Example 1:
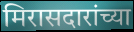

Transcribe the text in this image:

मिरासदारांच्या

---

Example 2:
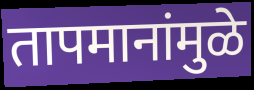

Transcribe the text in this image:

तापमानांमुळे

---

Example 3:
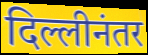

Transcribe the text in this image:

दिल्लीनंतर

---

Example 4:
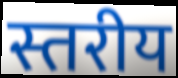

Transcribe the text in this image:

स्तरीय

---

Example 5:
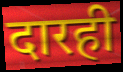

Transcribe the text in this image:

दारही